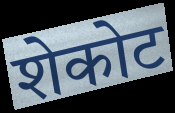
शेकोट